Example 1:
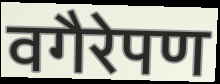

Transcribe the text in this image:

वगैरेपण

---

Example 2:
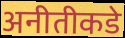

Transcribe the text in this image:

अनीतीकडे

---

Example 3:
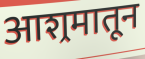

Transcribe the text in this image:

आश्रमातून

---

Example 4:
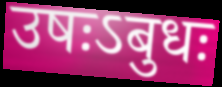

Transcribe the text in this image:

उषःऽबुधः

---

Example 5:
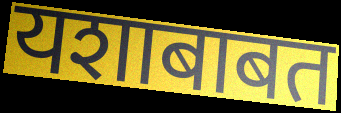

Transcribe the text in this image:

यशाबाबत